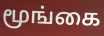
மூங்கை